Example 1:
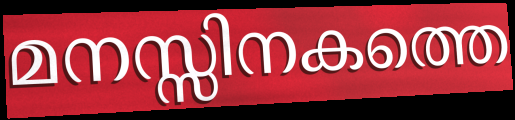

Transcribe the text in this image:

മനസ്സിനകത്തെ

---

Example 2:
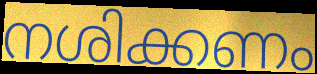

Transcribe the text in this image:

നശിക്കണം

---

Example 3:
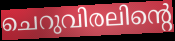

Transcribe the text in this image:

ചെറുവിരലിന്റെ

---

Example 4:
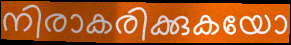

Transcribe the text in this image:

നിരാകരിക്കുകയോ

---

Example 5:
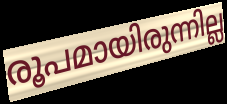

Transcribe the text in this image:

രൂപമായിരുന്നില്ല